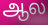
ஆல